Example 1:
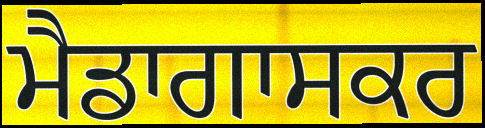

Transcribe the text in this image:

ਮੈਡਾਗਾਸਕਰ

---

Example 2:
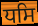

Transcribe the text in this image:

ਧਸਿ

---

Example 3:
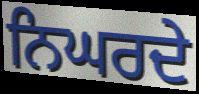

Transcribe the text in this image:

ਨਿਘਰਦੇ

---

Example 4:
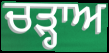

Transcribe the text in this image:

ਚੜ੍ਹਾਅ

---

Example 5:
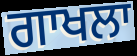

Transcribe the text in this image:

ਗਾਖਲਾ